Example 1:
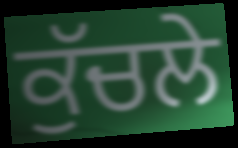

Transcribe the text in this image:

ਕੁੱਚਲੇ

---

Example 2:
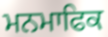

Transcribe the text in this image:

ਮਨਮਾਫਿਕ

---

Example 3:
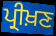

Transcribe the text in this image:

ਪ੍ਰੀਖ਼ਣ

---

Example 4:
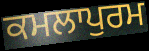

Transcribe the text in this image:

ਕਮਲਾਪੁਰਮ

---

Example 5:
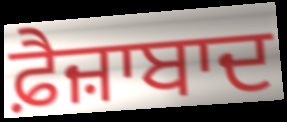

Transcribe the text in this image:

ਫ਼ੈਜ਼ਾਬਾਦ